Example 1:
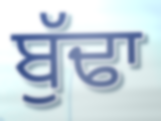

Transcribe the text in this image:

ਬੁੱਢਾ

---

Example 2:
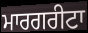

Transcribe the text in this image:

ਮਾਰਗਰੀਟਾ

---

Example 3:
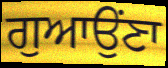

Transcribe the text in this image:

ਗੁਆਉਂਣਾ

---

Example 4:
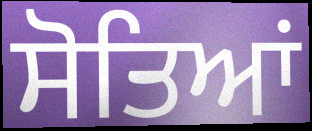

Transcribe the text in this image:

ਸੋਤਿਆਂ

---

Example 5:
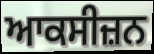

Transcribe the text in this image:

ਆਕਸੀਜ਼ਨ